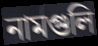
নামগুলি